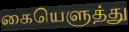
கையெளுத்து